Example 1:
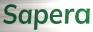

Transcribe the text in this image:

Sapera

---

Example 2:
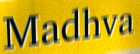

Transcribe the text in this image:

Madhva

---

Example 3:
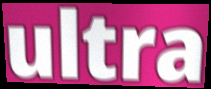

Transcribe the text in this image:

ultra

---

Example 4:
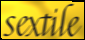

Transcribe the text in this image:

sextile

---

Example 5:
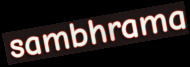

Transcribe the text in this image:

sambhrama